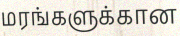
மரங்களுக்கான